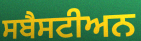
ਸਬੈਸਟੀਅਨ